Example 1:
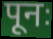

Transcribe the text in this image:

पूनः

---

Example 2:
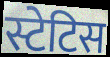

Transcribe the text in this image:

स्टेटिस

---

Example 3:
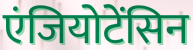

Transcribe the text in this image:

एंजियोटेंसिन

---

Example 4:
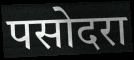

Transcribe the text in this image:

पसोदरा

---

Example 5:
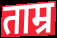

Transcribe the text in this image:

ताम्र